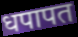
धपापत